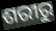
ଶରୀରୁ